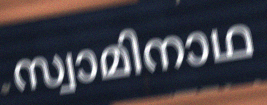
സ്വാമിനാഥ